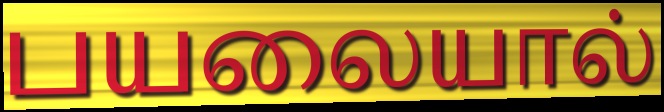
பயலையால்